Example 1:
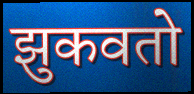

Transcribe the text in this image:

झुकवतो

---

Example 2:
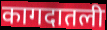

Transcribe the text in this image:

कागदातली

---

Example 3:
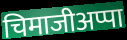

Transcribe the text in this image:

चिमाजीअप्पा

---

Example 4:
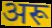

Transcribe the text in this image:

अरू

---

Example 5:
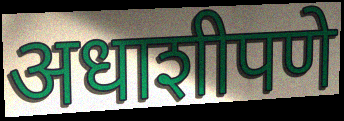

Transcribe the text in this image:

अधाशीपणे